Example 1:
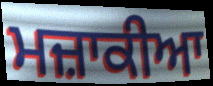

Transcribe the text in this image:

ਮਜ਼ਾਕੀਆ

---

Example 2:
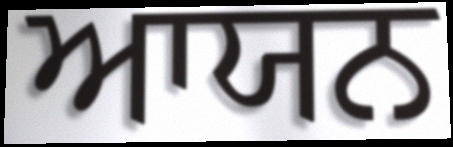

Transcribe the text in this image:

ਆਯਨ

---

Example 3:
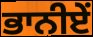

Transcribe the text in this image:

ਭਾਨੀਏਂ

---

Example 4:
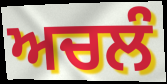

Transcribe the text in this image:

ਅਚਲੰ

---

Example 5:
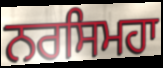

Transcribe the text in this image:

ਨਰਸਿਮਹਾ